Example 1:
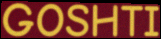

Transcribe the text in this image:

GOSHTI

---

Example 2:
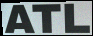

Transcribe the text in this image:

ATL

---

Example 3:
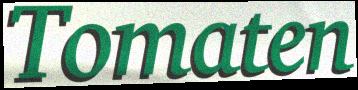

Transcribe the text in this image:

Tomaten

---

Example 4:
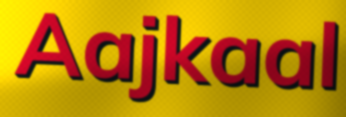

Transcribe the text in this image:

Aajkaal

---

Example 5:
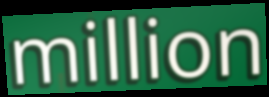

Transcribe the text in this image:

million